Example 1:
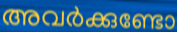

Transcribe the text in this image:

അവർക്കുണ്ടോ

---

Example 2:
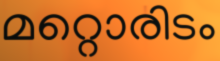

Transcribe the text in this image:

മറ്റൊരിടം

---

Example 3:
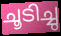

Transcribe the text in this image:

ചൂടിച്ചു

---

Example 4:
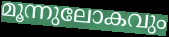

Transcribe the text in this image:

മൂന്നുലോകവും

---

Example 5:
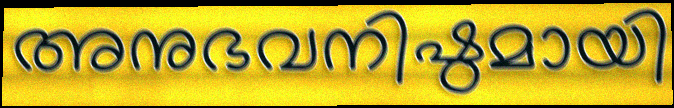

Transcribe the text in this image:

അനുഭവനിഷ്ഠമായി